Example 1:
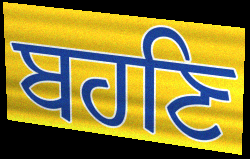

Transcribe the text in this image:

ਬਹਣਿ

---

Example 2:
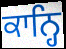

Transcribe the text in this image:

ਕਾਨ੍ਹਿ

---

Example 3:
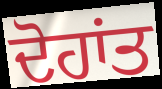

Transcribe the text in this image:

ਦੋਹਾਂਤ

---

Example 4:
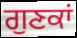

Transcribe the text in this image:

ਗੁਣਕਾਂ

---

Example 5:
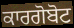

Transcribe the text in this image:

ਕਾਰਗੋਬੋਟ